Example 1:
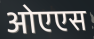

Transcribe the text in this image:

ओएएस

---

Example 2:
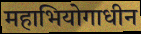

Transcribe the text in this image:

महाभियोगाधीन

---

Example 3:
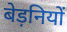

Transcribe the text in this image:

बेड़नियों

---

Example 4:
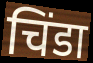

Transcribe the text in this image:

चिंडा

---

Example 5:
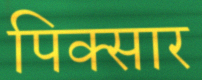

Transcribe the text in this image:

पिक्सार